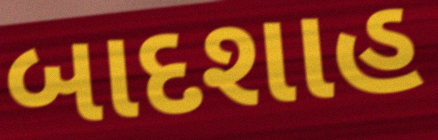
બાદશાહ